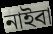
নাইবা